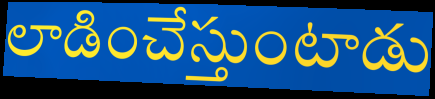
లాడించేస్తుంటాడు